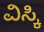
ವಿಸ್ಕಿ